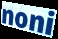
noni